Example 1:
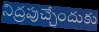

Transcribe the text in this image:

నిద్రపుచ్చేందుకు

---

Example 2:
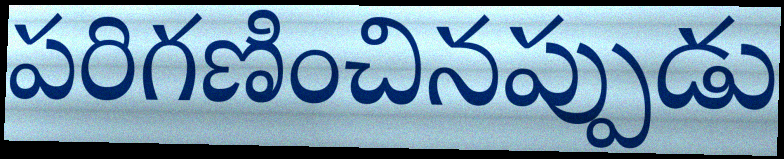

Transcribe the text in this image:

పరిగణించినప్పుడు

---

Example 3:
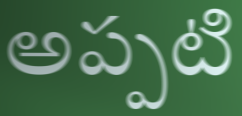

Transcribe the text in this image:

అప్పటి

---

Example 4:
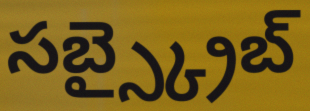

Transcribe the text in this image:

సబ్స్క్రైబ్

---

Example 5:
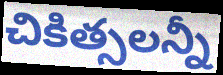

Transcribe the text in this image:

చికిత్సలన్నీ